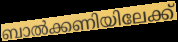
ബാൽക്കണിയിലേക്ക്